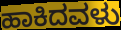
ಹಾಕಿದವಳು